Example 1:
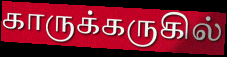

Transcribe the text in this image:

காருக்கருகில்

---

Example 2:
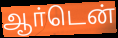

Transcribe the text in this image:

ஆர்டென்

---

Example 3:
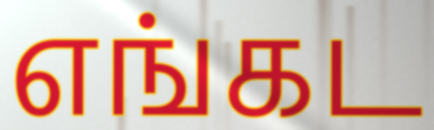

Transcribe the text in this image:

எங்கட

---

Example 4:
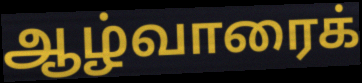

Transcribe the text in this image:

ஆழ்வாரைக்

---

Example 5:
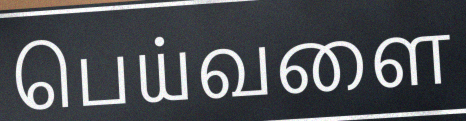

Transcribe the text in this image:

பெய்வளை